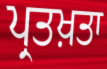
ਪ੍ਰਤਖ਼ਤਾ